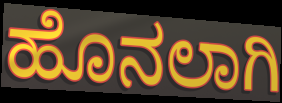
ಹೊನಲಾಗಿ